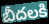
బీదలకి